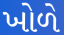
ખોળે